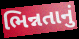
ભિન્નતાનું